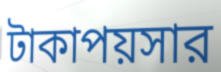
টাকাপয়সার